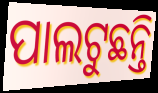
ପାଲଟୁଛନ୍ତି